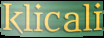
klicali